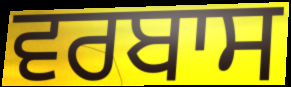
ਵਰਬਾਸ